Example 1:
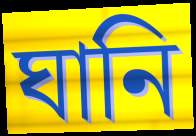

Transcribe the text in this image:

ঘানি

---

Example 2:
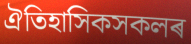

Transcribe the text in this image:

ঐতিহাসিকসকলৰ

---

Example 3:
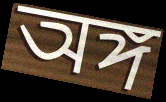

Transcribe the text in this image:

অঙ্গ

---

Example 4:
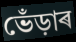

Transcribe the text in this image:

ভেঁড়াৰ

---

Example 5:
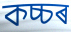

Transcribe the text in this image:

কচ্চৰ